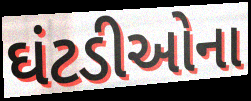
ઘંટડીઓના